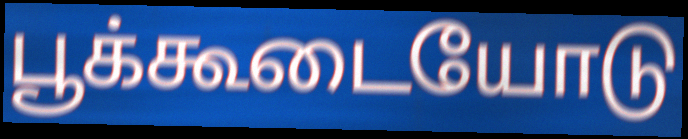
பூக்கூடையோடு